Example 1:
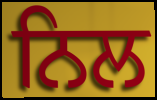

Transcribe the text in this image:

ਨਿਲ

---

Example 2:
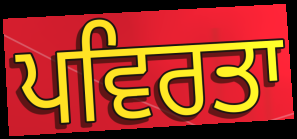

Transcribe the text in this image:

ਪਵਿਰਤਾ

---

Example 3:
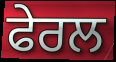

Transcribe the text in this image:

ਫੇਰਲ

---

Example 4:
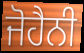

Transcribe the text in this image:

ਜੋਹੈਨੀ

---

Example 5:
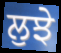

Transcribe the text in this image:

ਲੁਝੇ